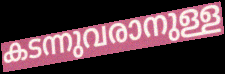
കടന്നുവരാനുള്ള